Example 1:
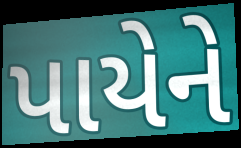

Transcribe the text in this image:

પાયેને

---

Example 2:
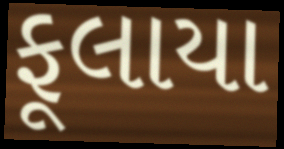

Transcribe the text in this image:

ફૂલાયા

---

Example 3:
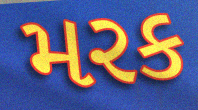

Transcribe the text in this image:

મરક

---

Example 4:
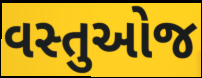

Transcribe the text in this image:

વસ્તુઓજ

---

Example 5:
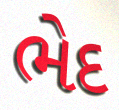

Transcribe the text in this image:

ભેદ